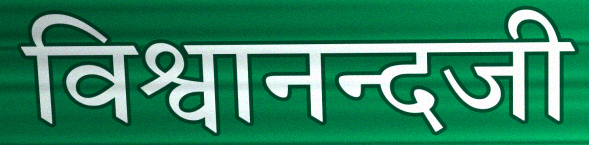
विश्वानन्दजी